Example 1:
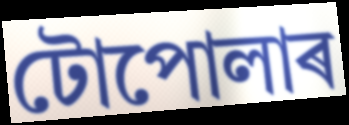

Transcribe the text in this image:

টোপোলাৰ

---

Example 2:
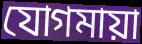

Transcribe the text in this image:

যোগমায়া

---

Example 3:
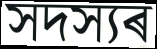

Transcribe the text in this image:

সদস্যৰ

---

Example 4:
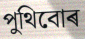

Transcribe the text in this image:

পুথিবোৰ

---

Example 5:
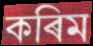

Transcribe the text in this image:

কৰিম